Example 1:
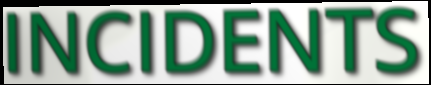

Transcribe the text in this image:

INCIDENTS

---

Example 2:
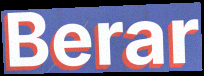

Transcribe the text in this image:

Berar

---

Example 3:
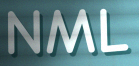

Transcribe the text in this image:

NML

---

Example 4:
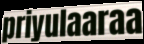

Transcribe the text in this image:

priyulaaraa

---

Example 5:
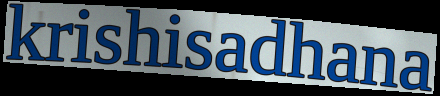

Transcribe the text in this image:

krishisadhana